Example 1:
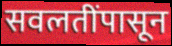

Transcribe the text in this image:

सवलतींपासून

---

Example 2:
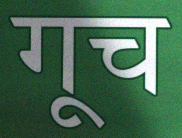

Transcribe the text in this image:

गूच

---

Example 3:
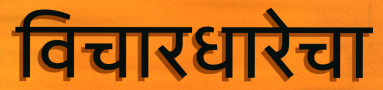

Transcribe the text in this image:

विचारधारेचा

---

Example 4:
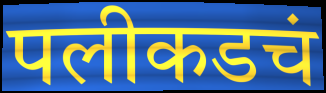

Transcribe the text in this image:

पलीकडचं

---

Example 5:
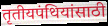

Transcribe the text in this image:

तृतीयपंथियांसाठी